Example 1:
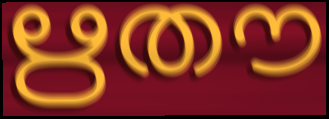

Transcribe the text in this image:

ഋതൗ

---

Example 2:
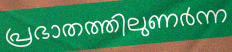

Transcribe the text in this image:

പ്രഭാതത്തിലുണർന്ന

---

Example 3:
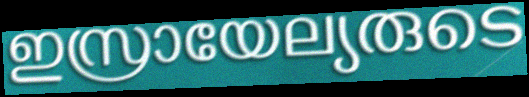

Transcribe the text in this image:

ഇസ്രായേല്യരുടെ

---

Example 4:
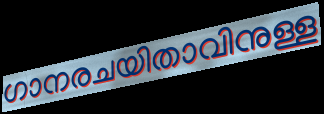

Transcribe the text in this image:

ഗാനരചയിതാവിനുള്ള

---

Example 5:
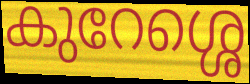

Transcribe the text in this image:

കുറേശ്ശെ